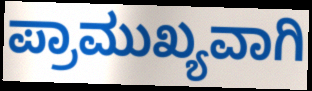
ಪ್ರಾಮುಖ್ಯವಾಗಿ